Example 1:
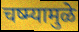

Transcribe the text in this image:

चष्म्यामुळे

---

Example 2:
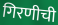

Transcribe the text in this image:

गिरणीची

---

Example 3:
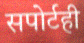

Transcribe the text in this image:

सपोर्टही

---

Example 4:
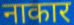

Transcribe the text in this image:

नाकार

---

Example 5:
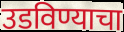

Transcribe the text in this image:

उडविण्याचा